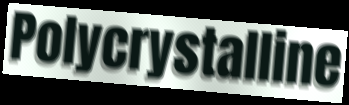
Polycrystalline